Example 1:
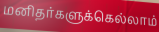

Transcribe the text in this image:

மனிதர்களுக்கெல்லாம்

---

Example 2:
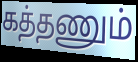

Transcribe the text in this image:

கத்தணும்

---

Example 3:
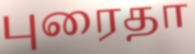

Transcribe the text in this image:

புரைதா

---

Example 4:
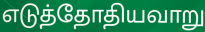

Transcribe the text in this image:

எடுத்தோதியவாறு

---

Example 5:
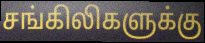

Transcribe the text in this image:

சங்கிலிகளுக்கு